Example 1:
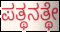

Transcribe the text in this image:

ಪತ್ಥನತ್ಥೇ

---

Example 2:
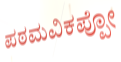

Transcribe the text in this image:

ಪಠಮವಿಕಪ್ಪೋ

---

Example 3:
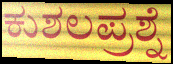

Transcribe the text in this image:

ಕುಶಲಪ್ರಶ್ನೆ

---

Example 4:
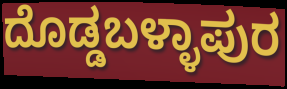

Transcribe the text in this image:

ದೊಡ್ಡಬಳ್ಳಾಪುರ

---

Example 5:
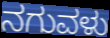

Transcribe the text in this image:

ನಗುವಳು